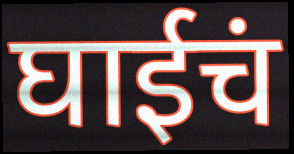
घाईचं